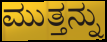
ಮುತ್ತನ್ನು